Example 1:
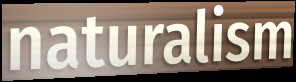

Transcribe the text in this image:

naturalism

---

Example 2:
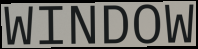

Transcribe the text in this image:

WINDOW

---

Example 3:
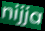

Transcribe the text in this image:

nijja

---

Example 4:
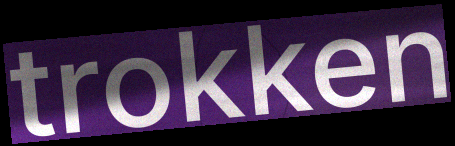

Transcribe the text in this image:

trokken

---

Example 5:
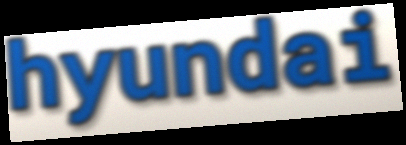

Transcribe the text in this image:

hyundai